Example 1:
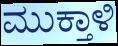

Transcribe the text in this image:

ಮುಕ್ತಾಳಿ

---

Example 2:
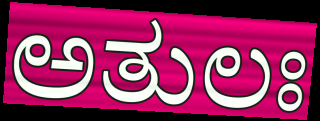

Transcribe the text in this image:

ಅತುಲಃ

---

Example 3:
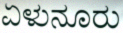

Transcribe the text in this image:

ಏಳುನೂರು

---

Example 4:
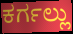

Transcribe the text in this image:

ಕರ್ಗಲ್ಲು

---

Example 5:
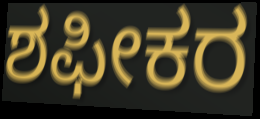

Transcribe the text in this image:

ಶಫೀಕರ